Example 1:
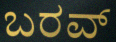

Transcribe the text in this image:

ಬರವ್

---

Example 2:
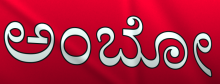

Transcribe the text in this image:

ಅಂಬೋ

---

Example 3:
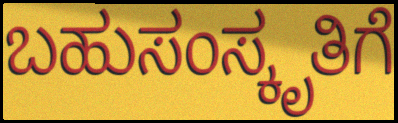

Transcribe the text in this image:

ಬಹುಸಂಸ್ಕೃತಿಗೆ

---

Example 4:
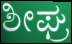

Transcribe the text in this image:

ಶೀಘ್ರ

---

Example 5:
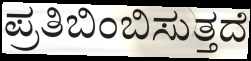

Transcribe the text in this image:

ಪ್ರತಿಬಿಂಬಿಸುತ್ತದೆ